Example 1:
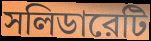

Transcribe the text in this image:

সলিডারেটি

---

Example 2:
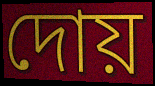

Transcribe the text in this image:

দোয়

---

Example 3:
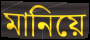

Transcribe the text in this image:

মানিয়ে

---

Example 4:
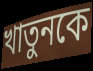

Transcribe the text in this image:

খাতুনকে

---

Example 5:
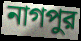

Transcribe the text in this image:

নাগপুর